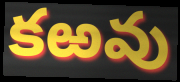
కఱవు